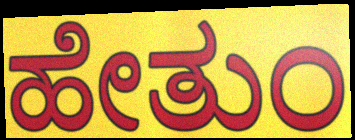
ಹೇತುಂ